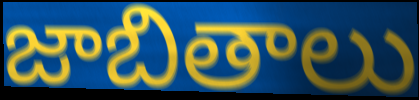
జాబితాలు